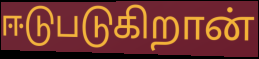
ஈடுபடுகிறான்